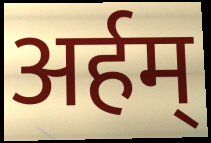
अर्हम्